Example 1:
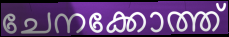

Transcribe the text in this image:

ചേനക്കോത്ത്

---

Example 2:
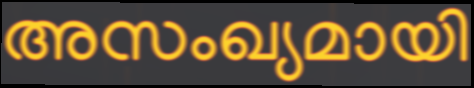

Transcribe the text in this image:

അസംഖ്യമായി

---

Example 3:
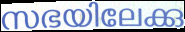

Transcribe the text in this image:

സഭയിലേക്കു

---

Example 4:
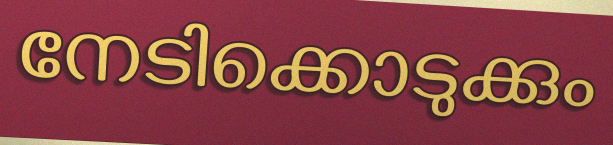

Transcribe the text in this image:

നേടിക്കൊടുക്കും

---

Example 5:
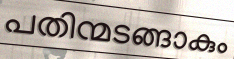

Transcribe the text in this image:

പതിന്മടങ്ങാകും